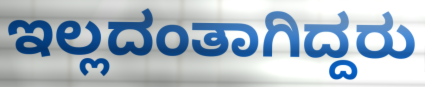
ಇಲ್ಲದಂತಾಗಿದ್ದರು